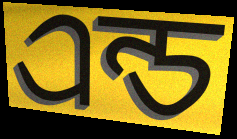
এন্ড